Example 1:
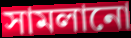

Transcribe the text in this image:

সামলানো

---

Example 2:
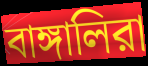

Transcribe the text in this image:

বাঙ্গালিরা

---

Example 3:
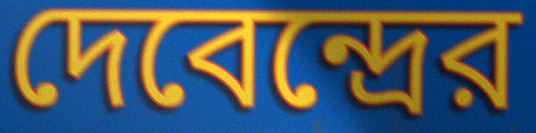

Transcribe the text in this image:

দেবেন্দ্রের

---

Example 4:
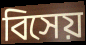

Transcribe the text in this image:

বিসেয়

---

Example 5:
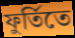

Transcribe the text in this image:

ফুর্তিতে